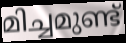
മിച്ചമുണ്ട്